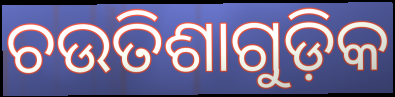
ଚଉତିଶାଗୁଡ଼ିକ